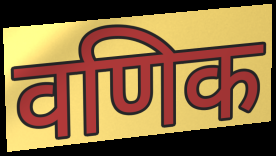
वणिक